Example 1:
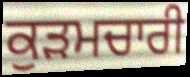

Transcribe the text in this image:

ਕੁੜਮਚਾਰੀ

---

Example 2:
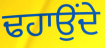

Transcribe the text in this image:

ਢਹਾਉਂਦੇ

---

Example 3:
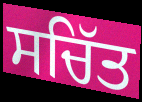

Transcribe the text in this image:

ਸਚਿੱਤ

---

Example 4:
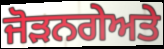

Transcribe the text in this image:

ਜੋੜਨਗੇਅਤੇ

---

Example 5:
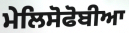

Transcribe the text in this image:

ਮੇਲਿਸੋਫੋਬੀਆ